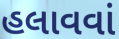
હલાવવાં